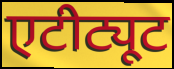
एटीट्यूट